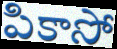
పికాసో